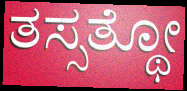
ತಸ್ಸತ್ಥೋ